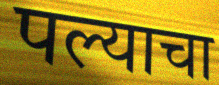
पल्याचा